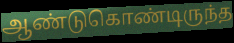
ஆண்டுகொண்டிருந்த